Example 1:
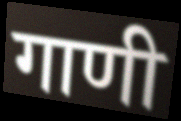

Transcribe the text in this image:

गाणी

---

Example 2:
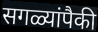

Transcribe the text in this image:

सगळ्यांपैकी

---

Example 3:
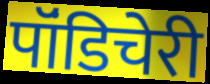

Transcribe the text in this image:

पॉंडिचेरी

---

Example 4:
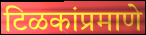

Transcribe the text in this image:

टिळकांप्रमाणे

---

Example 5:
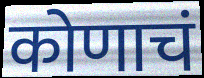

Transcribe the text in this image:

कोणाचं